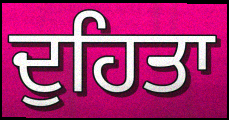
ਦੁਹਿਤਾ